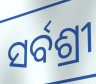
ସର୍ବଶ୍ରୀ